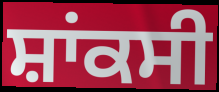
ਸ਼ਾਂਕਸੀ